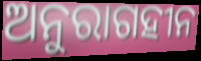
ଅନୁରାଗହୀନ